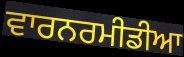
ਵਾਰਨਰਮੀਡੀਆ